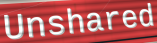
Unshared